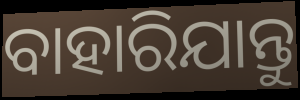
ବାହାରିଯାନ୍ତୁ